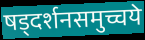
षड्दर्शनसमुच्चये